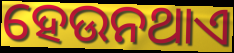
ହେଉନଥାଏ